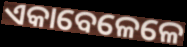
ଏକାବେଳେଳେ